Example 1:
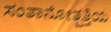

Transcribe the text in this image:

ಸಂತಾನೋತ್ಪತ್ತಿಯ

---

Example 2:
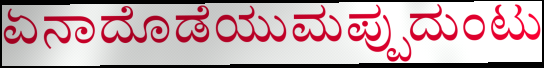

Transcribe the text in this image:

ಏನಾದೊಡೆಯುಮಪ್ಪುದುಂಟು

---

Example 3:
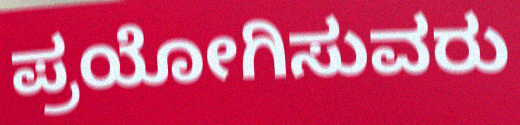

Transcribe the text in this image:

ಪ್ರಯೋಗಿಸುವರು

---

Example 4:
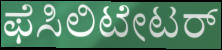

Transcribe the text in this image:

ಫೆಸಿಲಿಟೇಟರ್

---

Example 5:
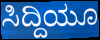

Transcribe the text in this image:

ಸಿದ್ದಿಯೂ